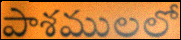
పాశములలో